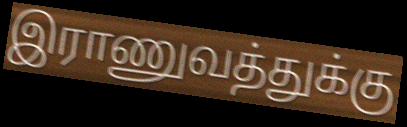
இராணுவத்துக்கு